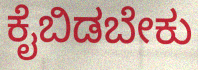
ಕೈಬಿಡಬೇಕು